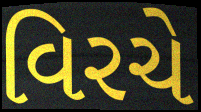
વિરચે